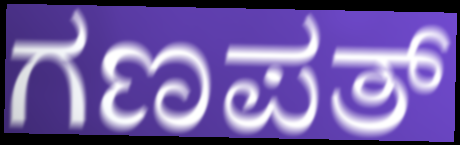
ಗಣಪತ್